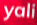
yali